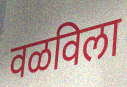
वळविला